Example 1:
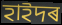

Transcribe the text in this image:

হাইদৰ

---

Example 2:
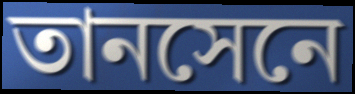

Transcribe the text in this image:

তানসেনে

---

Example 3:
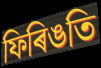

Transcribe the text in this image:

ফিৰিঙতি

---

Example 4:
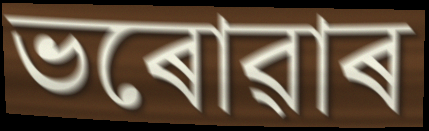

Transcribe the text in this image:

ভৰোৱাৰ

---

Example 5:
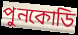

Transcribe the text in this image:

পুনকোডি